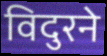
विदुरने